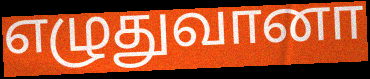
எழுதுவானா